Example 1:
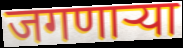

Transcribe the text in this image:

जगणाऱ्या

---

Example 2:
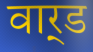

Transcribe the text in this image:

वार्ड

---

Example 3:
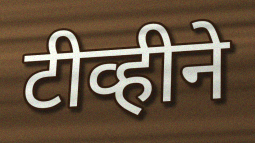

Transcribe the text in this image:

टीव्हीने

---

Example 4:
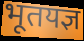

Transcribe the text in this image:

भूतयज्ञ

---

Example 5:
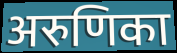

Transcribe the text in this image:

अरुणिका